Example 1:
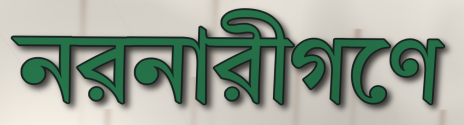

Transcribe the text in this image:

নরনারীগণে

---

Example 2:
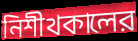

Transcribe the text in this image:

নিশীথকালের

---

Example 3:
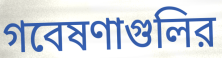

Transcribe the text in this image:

গবেষণাগুলির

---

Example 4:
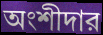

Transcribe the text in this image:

অংশীদার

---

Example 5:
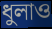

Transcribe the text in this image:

ধুলাও